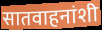
सातवाहनांशी